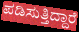
ಪಡಿಸುತ್ತಿದ್ದಾರೆ